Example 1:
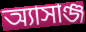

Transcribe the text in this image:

অ্যাসাঞ্জ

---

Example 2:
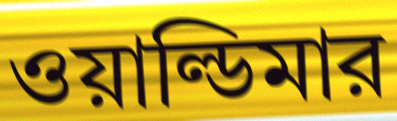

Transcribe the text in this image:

ওয়াল্ডিমার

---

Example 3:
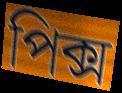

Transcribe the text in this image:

পিক্স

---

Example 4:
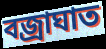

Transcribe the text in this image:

বজ্রাঘাত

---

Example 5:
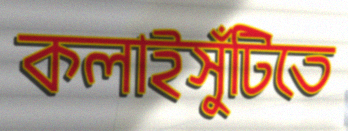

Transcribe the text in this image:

কলাইসুঁটিতে